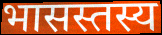
भासस्तस्य